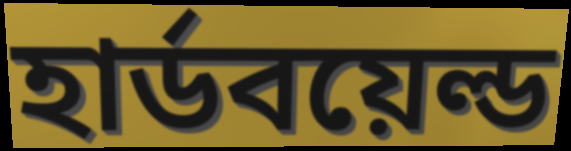
হার্ডবয়েল্ড